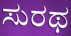
ಸುರಥ